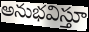
అనుభవిస్తూ